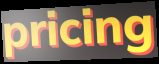
pricing